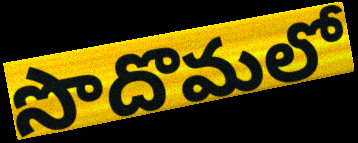
సొదొమలో